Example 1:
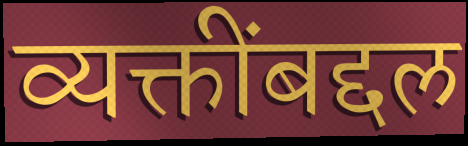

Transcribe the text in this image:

व्यक्तींबद्दल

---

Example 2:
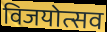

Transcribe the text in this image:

विजयोत्सव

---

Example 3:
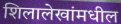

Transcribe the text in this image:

शिलालेखांमधील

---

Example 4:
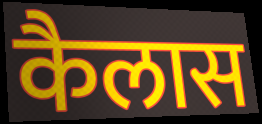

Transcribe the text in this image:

कैलास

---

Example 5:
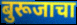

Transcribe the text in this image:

बुरूजाचा